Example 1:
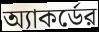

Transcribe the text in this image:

অ্যাকর্ডের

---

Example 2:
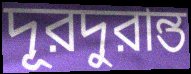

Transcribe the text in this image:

দূরদুরান্ত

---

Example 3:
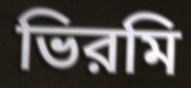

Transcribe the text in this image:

ভিরমি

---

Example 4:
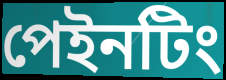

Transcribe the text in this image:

পেইনটিং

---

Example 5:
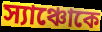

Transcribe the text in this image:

স্যাঞ্চোকে